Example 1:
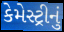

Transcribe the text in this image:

કેમેસ્ટ્રીનું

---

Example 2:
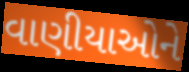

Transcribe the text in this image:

વાણીયાઓને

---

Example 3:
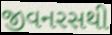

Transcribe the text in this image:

જીવનરસથી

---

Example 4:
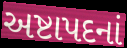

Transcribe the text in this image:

અષ્ટાપદનાં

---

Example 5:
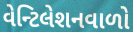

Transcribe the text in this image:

વેન્ટિલેશનવાળો